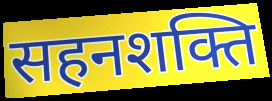
सहनशक्ति